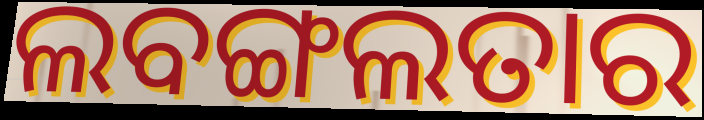
ଲବଙ୍ଗଲତାର